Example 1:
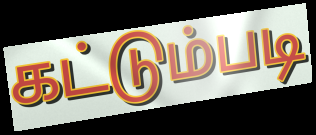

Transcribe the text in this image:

கட்டும்படி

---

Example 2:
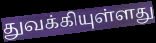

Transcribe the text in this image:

துவக்கியுள்ளது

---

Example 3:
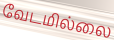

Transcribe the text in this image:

வேடமில்லை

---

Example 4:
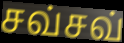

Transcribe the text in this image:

சவ்சவ்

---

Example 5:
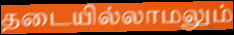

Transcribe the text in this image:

தடையில்லாமலும்